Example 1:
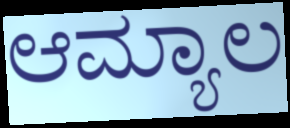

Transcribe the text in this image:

ಆಮ್ಯಾಲ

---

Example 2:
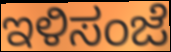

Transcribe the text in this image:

ಇಳಿಸಂಜೆ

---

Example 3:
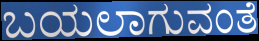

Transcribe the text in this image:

ಬಯಲಾಗುವಂತೆ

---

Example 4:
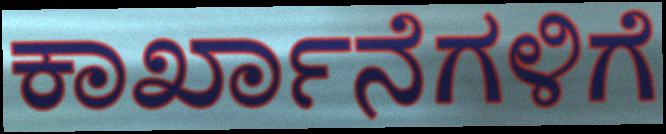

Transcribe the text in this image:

ಕಾರ್ಖಾನೆಗಳಿಗೆ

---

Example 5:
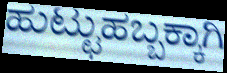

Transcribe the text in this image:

ಹುಟ್ಟುಹಬ್ಬಕ್ಕಾಗಿ